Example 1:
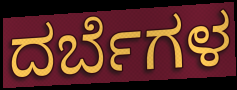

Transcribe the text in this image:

ದರ್ಬೆಗಳ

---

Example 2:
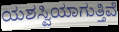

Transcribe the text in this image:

ಯಶಸ್ವಿಯಾಗುತ್ತಿವೆ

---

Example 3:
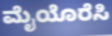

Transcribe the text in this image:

ಮೈಯೊರೆಸಿ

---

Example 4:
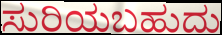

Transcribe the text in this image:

ಸುರಿಯಬಹುದು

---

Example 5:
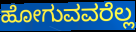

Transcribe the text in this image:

ಹೋಗುವವರೆಲ್ಲ